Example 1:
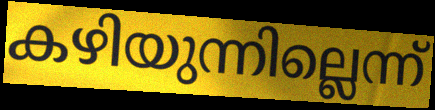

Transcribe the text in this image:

കഴിയുന്നില്ലെന്ന്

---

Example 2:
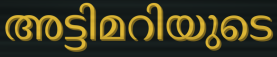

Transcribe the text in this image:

അട്ടിമറിയുടെ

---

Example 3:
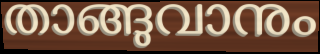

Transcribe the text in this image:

താങ്ങുവാനും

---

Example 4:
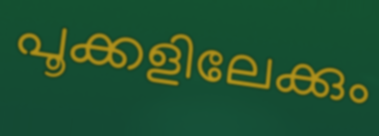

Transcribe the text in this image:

പൂക്കളിലേക്കും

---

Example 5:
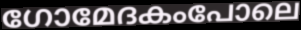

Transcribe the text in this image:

ഗോമേദകംപോലെ